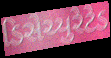
ડિસેચ્યુરેટેડ